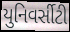
યુનિવર્સીટી